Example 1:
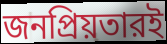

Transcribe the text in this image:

জনপ্রিয়তারই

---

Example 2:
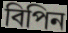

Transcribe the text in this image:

বিপিন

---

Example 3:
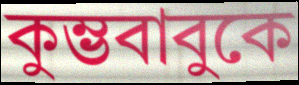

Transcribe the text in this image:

কুম্ভবাবুকে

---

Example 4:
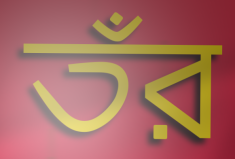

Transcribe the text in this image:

তঁর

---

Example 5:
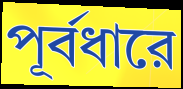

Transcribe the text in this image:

পূর্বধারে